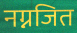
नग्नजित